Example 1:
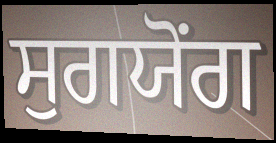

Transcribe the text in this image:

ਸੁਗਯੋਂਗ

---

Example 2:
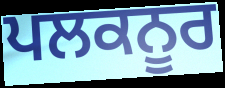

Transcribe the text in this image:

ਪਲਕਨੂਰ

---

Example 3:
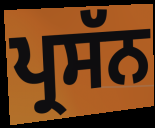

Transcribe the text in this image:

ਪ੍ਰਸੱਨ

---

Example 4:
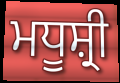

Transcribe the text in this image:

ਮਧੂਸ਼੍ਰੀ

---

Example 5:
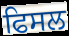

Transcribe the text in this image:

ਫਿਸਲ